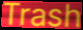
Trash